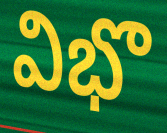
విభొ